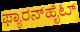
ಫ್ಯಾರನ್‌ಹೈಟ್